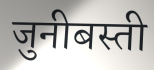
जुनीबस्ती